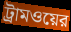
ট্রামওয়ের